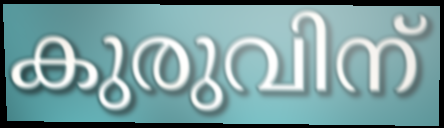
കുരുവിന്